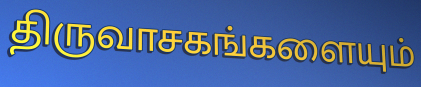
திருவாசகங்களையும்